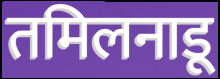
तमिलनाडू